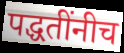
पद्धतींनीच